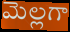
మెల్లగా